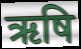
ऋषि